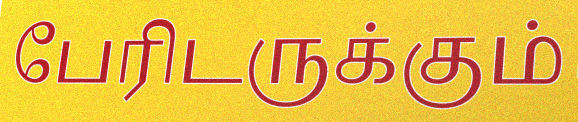
பேரிடருக்கும்